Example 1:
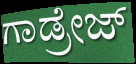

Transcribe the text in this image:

ಗಾಡ್ರೇಜ್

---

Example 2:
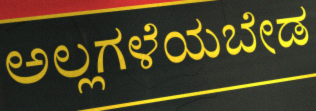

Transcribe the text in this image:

ಅಲ್ಲಗಳೆಯಬೇಡ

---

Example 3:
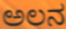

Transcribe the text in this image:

ಅಲನ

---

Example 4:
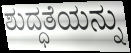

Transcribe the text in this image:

ಶುದ್ಧತೆಯನ್ನು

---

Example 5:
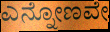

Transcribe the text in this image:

ಎನ್ನೋಣವೇ